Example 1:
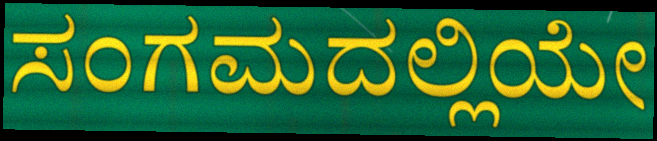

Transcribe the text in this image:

ಸಂಗಮದಲ್ಲಿಯೇ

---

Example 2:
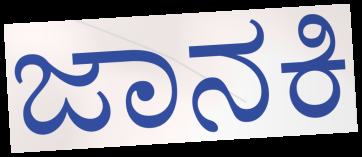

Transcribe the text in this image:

ಜಾನಕಿ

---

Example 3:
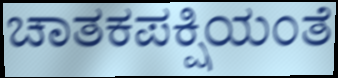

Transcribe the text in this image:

ಚಾತಕಪಕ್ಷಿಯಂತೆ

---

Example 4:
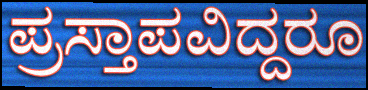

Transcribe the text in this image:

ಪ್ರಸ್ತಾಪವಿದ್ದರೂ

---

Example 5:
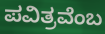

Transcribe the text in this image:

ಪವಿತ್ರವೆಂಬ